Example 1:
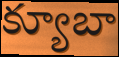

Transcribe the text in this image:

క్యూబా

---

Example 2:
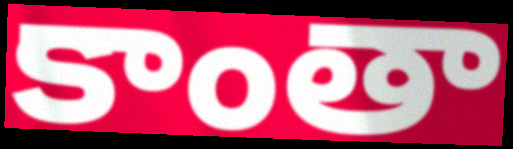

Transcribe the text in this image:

కాంతా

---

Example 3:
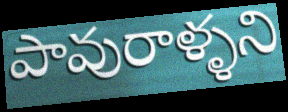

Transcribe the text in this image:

పావురాళ్ళని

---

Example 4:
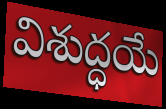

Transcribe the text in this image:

విశుద్ధయే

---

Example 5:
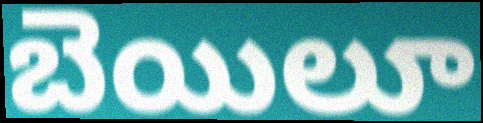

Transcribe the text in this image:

బెయిలూ